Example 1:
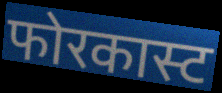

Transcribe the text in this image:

फोरकास्ट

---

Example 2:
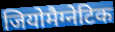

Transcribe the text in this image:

जियोमैग्नेटिक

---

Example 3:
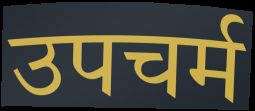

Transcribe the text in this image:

उपचर्म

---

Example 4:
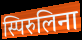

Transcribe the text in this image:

स्पिरुलिना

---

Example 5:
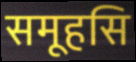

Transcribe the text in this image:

समूहसि